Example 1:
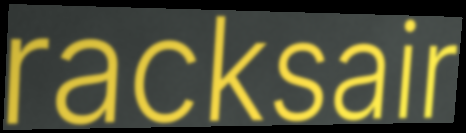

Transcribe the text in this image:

racksair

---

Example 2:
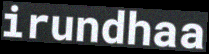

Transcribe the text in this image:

irundhaa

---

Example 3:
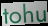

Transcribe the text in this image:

tohu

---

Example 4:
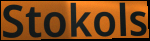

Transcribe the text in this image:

Stokols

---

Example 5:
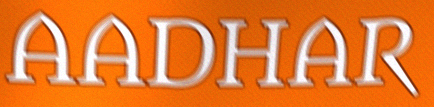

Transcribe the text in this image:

AADHAR